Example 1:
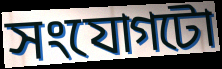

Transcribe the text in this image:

সংযোগটো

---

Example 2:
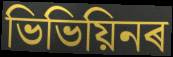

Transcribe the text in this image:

ভিভিয়িনৰ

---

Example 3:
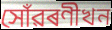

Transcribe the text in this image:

সোঁৱৰণীখন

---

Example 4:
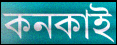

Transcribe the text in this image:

কনকাই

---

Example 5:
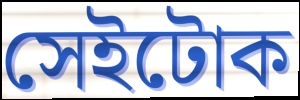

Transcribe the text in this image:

সেইটোক